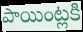
పాయింట్లకి